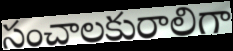
సంచాలకురాలిగా